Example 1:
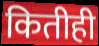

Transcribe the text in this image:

कितीही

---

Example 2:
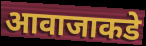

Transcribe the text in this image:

आवाजाकडे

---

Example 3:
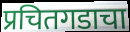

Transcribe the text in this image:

प्रचितगडाचा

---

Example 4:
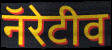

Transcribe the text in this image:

नॅरेटीव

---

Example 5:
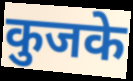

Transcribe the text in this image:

कुजके